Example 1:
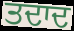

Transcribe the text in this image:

ਤਦਾਦ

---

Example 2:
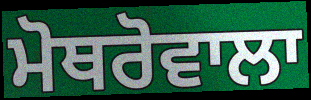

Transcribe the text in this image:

ਮੋਥਰੋਵਾਲਾ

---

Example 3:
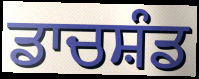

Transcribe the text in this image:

ਡਾਚਸ਼ੰਡ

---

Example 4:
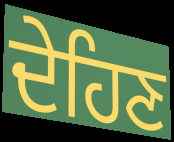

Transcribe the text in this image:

ਦੇਹਿਣ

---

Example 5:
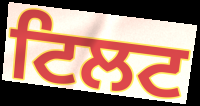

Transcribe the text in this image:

ਟਿਲਟ